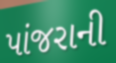
પાંજરાની